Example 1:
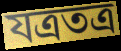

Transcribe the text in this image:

যত্রতত্র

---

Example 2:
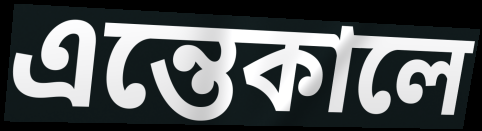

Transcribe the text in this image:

এন্তেকালে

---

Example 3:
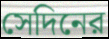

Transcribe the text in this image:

সেদিনের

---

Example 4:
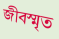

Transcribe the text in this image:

জীবস্মৃত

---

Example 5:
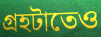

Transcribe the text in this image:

গ্রহটাতেও